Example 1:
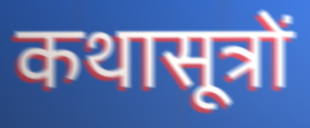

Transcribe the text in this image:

कथासूत्रों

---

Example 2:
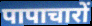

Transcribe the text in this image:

पापाचारों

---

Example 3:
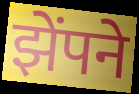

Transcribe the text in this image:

झेंपने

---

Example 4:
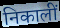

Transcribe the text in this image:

निकालीं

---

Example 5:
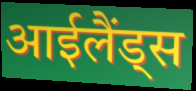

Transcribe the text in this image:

आईलैंड्स